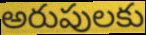
అరుపులకు